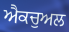
ਐਕਚੁਅਲ